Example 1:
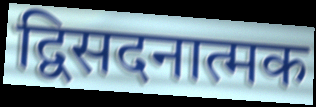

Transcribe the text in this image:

द्विसदनात्मक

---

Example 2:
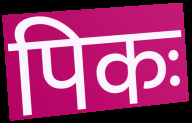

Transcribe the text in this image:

पिकः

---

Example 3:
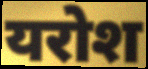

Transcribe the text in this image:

यरोश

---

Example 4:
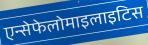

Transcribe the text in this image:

एन्सेफेलोमाइलाइटिस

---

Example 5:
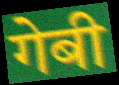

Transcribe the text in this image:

गेबी